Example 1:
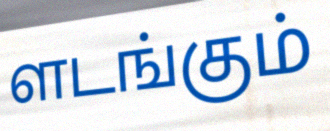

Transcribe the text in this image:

ளடங்கும்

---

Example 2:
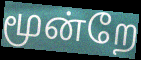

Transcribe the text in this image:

மூன்றே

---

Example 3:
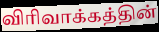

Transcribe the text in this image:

விரிவாக்கத்தின்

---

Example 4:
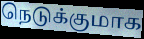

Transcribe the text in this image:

நெடுக்குமாக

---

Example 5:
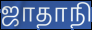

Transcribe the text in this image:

ஜாதாநி